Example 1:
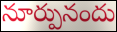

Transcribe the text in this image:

నూర్పునందు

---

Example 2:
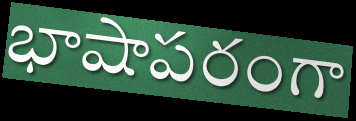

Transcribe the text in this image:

భాషాపరంగా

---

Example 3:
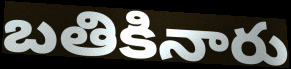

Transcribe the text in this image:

బతికినారు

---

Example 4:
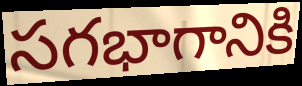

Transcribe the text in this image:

సగభాగానికి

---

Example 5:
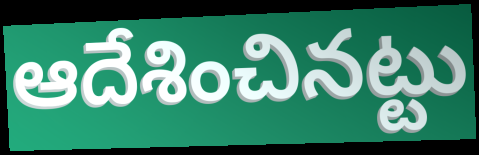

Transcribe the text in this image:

ఆదేశించినట్టు